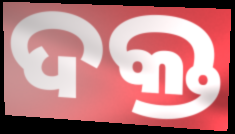
ଦକ୍ତ